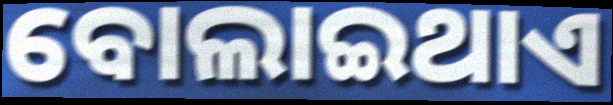
ବୋଲାଇଥାଏ